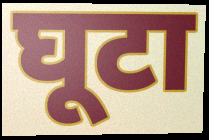
घूटा